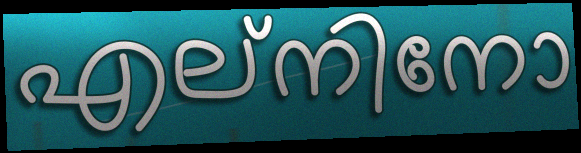
എല്നിനോ